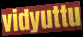
vidyuttu